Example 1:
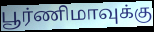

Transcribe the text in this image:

பூர்ணிமாவுக்கு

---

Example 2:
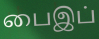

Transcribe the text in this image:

பைஇப்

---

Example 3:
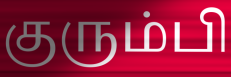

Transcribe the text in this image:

குரும்பி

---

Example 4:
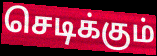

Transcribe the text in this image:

செடிக்கும்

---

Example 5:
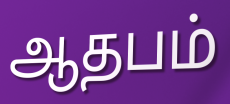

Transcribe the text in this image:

ஆதபம்